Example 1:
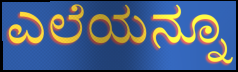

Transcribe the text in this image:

ಎಲೆಯನ್ನೂ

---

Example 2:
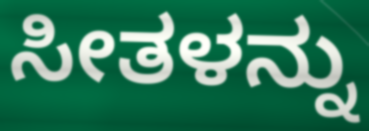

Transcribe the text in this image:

ಸೀತಳನ್ನು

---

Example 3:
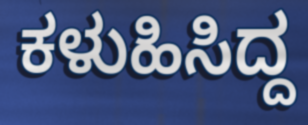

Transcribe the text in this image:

ಕಳುಹಿಸಿದ್ದ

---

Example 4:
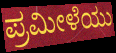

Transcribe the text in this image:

ಪ್ರಮೀಳೆಯು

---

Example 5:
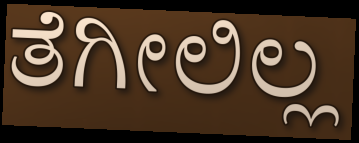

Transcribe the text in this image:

ತೆಗೀಲಿಲ್ಲ